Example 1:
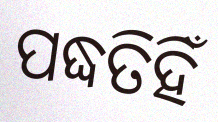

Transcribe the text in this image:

ପଦ୍ଧତିହିଁ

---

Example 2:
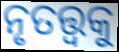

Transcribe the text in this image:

ନୃତତ୍ତ୍ଵକୁ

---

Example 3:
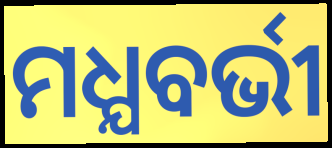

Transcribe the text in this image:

ମଧ୍ଯବର୍ଭୀ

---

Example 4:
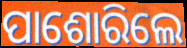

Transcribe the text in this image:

ପାଶୋରିଲେ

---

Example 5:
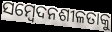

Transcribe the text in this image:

ସମ୍ବେଦନଶୀଳତାକୁ